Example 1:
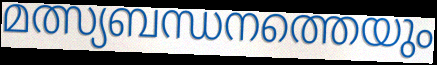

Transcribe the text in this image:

മത്സ്യബന്ധനത്തെയും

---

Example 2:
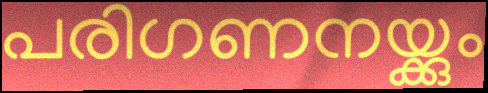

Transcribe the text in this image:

പരിഗണനയ്ക്കും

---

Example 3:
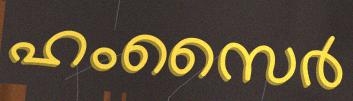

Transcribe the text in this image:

ഹംസൈർ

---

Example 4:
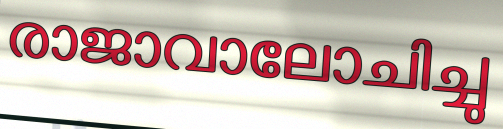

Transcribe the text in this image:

രാജാവാലോചിച്ചു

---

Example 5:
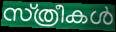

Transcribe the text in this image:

സ്‌ത്രീകൾ